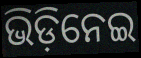
ଭିଡ଼ିନେଇ